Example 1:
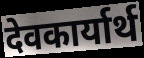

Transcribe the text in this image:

देवकार्यार्थ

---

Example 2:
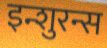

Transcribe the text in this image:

इन्शुरन्स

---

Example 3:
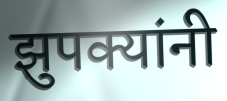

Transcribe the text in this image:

झुपक्यांनी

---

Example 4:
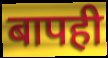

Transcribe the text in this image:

बापही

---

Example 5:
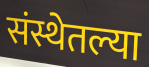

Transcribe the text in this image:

संस्थेतल्या